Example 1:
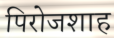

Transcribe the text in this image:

पिरोजशाह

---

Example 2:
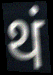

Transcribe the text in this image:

थं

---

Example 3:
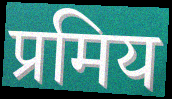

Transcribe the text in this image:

प्रमिय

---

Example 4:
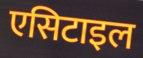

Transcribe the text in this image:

एसिटाइल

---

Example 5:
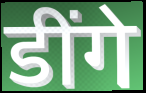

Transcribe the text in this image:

डींगे